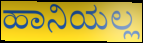
ಹಾನಿಯಲ್ಲ